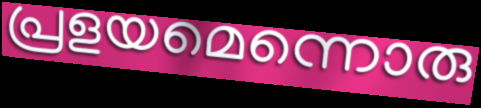
പ്രളയമെന്നൊരു